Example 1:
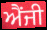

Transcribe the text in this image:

ਐਂਜੀ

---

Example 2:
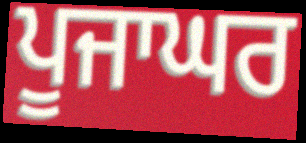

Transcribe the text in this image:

ਪੂਜਾਘਰ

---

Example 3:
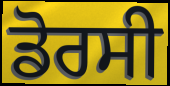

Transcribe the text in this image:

ਡੋਰਸੀ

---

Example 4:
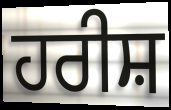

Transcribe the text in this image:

ਹਰੀਸ਼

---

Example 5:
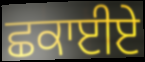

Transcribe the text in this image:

ਛਕਾਈਏ